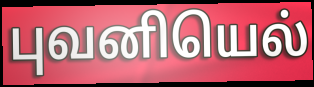
புவனியெல்